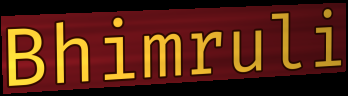
Bhimruli